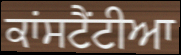
ਕਾਂਸਟੈਂਟੀਆ